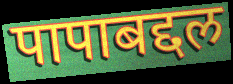
पापाबद्दल